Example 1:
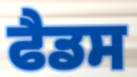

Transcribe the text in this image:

ਫੈਡਸ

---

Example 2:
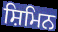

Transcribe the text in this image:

ਸ਼ਿਮਿਨ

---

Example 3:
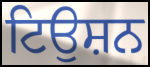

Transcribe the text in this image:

ਟਿਉਸ਼ਨ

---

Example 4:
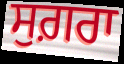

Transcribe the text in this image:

ਸੁਗ਼ਰਾ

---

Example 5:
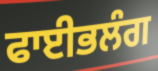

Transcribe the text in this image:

ਫਾਈਭਲੰਗ